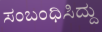
ಸಂಬಂಧಿಸಿದ್ದು